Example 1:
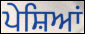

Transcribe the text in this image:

ਪੇਸ਼ਿਆਂ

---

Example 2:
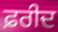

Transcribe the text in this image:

ਫ਼ਰੀਦ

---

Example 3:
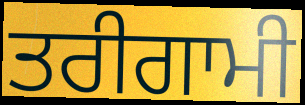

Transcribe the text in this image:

ਤਰੀਗਾਮੀ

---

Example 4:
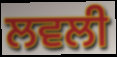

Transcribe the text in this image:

ਲਵਲੀ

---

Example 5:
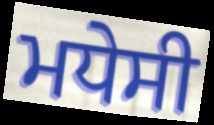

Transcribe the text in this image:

ਮਧੇਸੀ